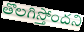
తొలగిస్తోందని